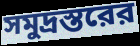
সমুদ্রস্তরের